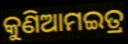
କୁଣିଆମଇତ୍ର